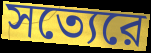
সত্যেরে